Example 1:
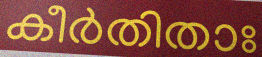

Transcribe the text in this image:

കീർതിതാഃ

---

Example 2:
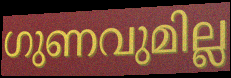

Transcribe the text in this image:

ഗുണവുമില്ല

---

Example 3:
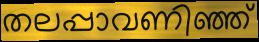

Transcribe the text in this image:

തലപ്പാവണിഞ്ഞ്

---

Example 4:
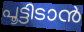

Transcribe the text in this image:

പൂട്ടിടാൻ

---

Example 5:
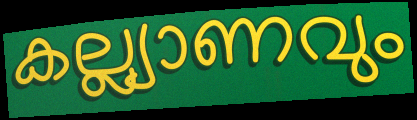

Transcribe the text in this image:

കല്ല്യാണവും